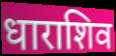
धाराशिव